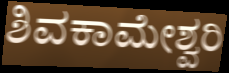
ಶಿವಕಾಮೇಶ್ವರಿ